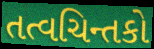
તત્વચિન્તકો